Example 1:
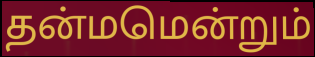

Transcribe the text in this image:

தன்மமென்றும்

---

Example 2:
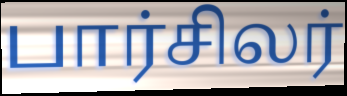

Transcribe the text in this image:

பார்சிலர்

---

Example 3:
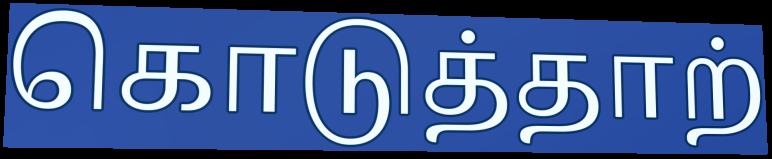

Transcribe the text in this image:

கொடுத்தாற்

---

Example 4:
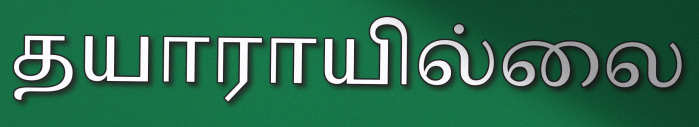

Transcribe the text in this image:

தயாராயில்லை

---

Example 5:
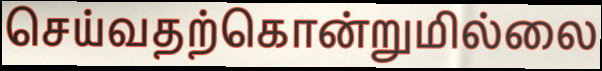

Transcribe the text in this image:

செய்வதற்கொன்றுமில்லை